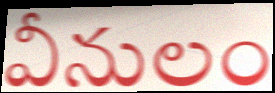
వీనులం